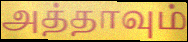
அத்தாவும்